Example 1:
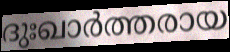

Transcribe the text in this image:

ദുഃഖാർത്തരായ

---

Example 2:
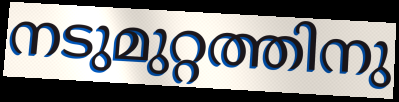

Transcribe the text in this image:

നടുമുറ്റത്തിനു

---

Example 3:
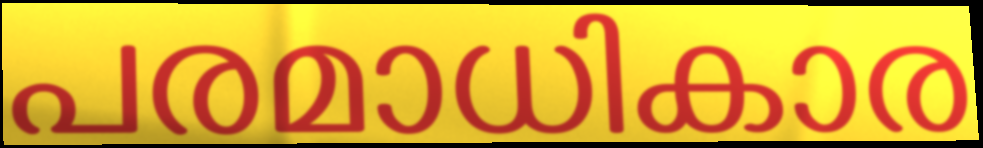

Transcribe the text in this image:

പരമാധികാര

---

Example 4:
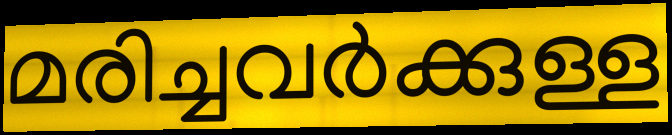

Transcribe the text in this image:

മരിച്ചവർക്കുള്ള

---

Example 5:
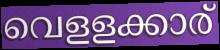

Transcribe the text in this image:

വെളളക്കാര്